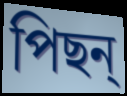
পিছন্